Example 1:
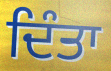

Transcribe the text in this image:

ਦਿੰਤਾ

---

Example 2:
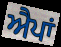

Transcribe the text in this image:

ਐਪਾਂ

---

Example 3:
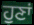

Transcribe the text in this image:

ਹੁਣਾਂ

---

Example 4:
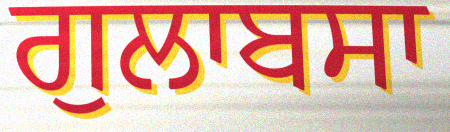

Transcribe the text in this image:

ਗੁਲਾਬਸਾ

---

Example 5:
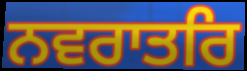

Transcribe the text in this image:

ਨਵਰਾਤਰਿ